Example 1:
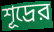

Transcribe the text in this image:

শূদ্রের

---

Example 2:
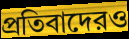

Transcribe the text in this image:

প্রতিবাদেরও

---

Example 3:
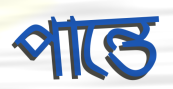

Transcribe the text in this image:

পান্তে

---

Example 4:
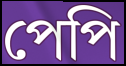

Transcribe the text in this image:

পেপি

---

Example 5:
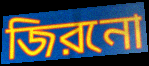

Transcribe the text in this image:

জিরনো